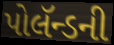
પોલૅન્ડની